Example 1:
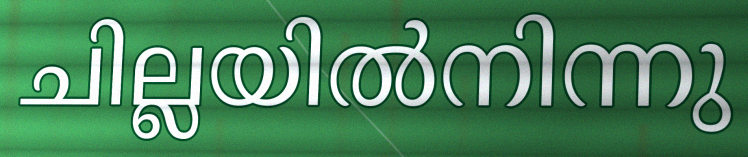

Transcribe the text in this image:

ചില്ലയിൽനിന്നു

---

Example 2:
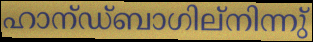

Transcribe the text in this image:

ഹാന്ഡ്ബാഗില്നിന്നു്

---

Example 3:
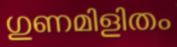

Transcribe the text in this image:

ഗുണമിളിതം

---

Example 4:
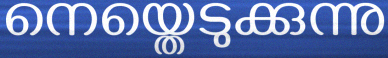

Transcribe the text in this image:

നെയ്തെടുക്കുന്നു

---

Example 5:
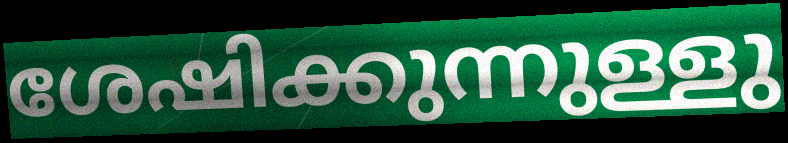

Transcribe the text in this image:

ശേഷിക്കുന്നുള്ളു